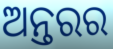
ଅନ୍ତରର